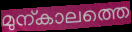
മുന്കാലത്തെ